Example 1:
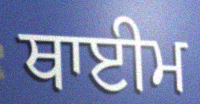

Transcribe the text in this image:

ਥਾਈਮ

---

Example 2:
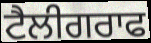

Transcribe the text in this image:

ਟੈਲੀਗਰਾਫ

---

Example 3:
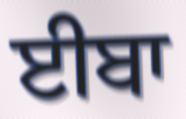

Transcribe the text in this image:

ਈਬਾ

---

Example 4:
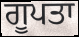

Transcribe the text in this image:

ਗੂਪਤਾ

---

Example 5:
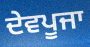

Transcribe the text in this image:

ਦੇਵਪੂਜਾ